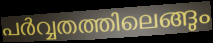
പർവ്വതത്തിലെങ്ങും